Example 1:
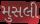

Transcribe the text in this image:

મુસલી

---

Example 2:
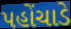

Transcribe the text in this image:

પહોંચાડે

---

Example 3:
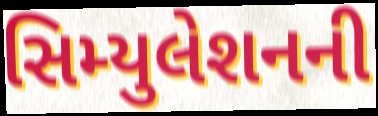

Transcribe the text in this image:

સિમ્યુલેશનની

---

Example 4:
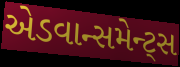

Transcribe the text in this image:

એડવાન્સમેન્ટ્સ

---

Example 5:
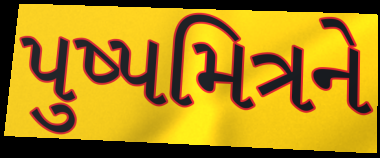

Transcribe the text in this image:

પુષ્પમિત્રને